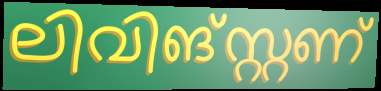
ലിവിങ്സ്റ്റണ്